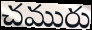
చమురు